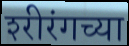
श्रीरंगच्या